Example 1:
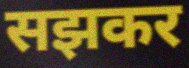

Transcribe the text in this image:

सझकर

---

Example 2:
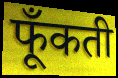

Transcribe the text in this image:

फूँकती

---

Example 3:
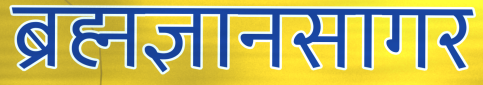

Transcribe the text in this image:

ब्रह्मज्ञानसागर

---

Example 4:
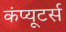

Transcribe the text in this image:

कंप्यूटर्स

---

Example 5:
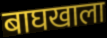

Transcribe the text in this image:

बाघखाला